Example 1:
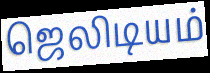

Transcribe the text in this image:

ஜெலிடியம்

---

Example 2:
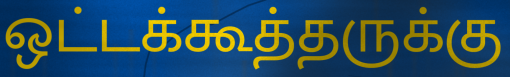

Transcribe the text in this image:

ஒட்டக்கூத்தருக்கு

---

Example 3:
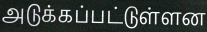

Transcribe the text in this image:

அடுக்கப்பட்டுள்ளன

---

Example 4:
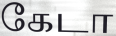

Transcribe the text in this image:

கேடா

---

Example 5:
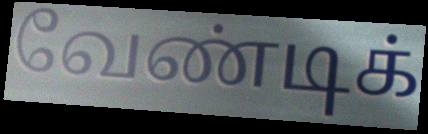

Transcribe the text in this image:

வேண்டிக்